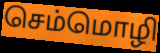
செம்மொழி